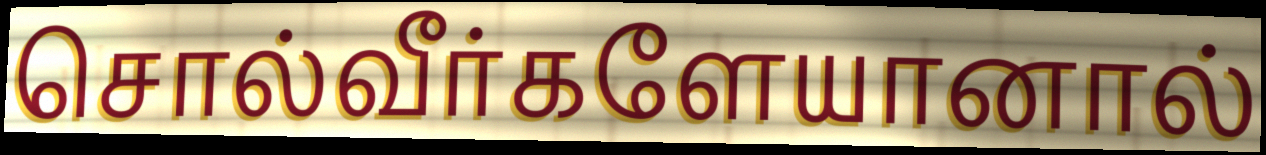
சொல்வீர்களேயானால்